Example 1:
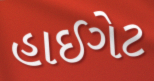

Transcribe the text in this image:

હાઈગેટ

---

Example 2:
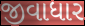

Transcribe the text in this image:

જીવાધાર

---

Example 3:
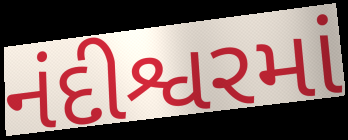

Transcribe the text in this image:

નંદીશ્વરમાં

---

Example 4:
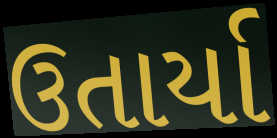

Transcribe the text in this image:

ઉતાર્યા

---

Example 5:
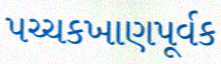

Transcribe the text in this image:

પચ્ચકખાણપૂર્વક